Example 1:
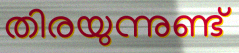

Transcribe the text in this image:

തിരയുന്നുണ്ട്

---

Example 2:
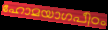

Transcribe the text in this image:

ഹോമയാഗപീഠം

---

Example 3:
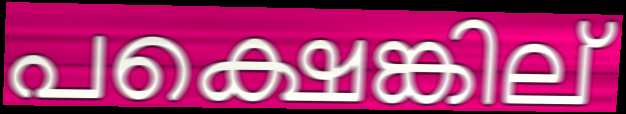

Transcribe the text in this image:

പക്ഷെങ്കില്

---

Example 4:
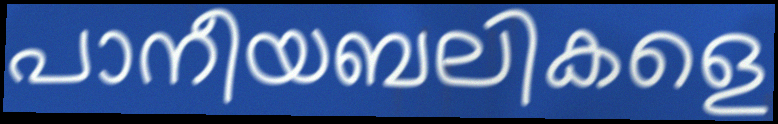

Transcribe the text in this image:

പാനീയബലികളെ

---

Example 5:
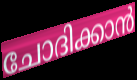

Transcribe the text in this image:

ചോദിക്കാൻ